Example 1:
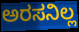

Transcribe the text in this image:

ಅರಸನಿಲ್ಲ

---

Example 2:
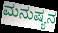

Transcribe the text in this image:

ಮನುಷ್ಯನ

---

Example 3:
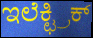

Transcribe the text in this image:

ಇಲೆಕ್ಟ್ರಿಕ್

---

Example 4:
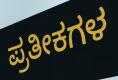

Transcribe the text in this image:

ಪ್ರತೀಕಗಳ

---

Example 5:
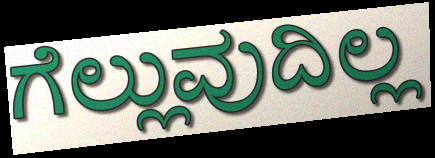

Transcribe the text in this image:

ಗೆಲ್ಲುವುದಿಲ್ಲ